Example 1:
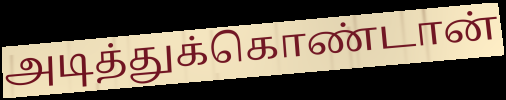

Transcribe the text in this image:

அடித்துக்கொண்டான்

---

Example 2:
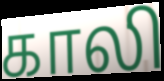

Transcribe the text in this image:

காலி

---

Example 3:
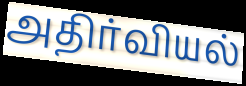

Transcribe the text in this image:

அதிர்வியல்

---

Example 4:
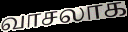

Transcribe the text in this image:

வாசலாக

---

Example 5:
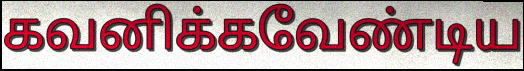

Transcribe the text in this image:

கவனிக்கவேண்டிய